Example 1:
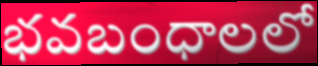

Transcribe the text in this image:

భవబంధాలలో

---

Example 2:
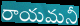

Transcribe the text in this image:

రాయమనీ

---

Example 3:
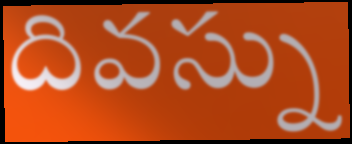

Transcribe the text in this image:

దివస్ను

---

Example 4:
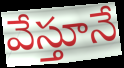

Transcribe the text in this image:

వేస్తూనే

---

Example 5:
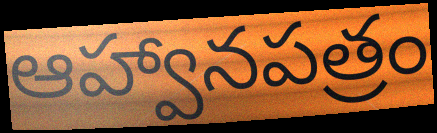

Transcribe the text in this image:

ఆహ్వానపత్రం